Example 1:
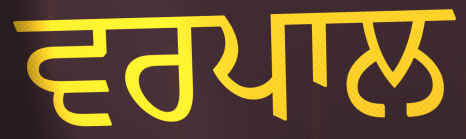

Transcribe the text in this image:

ਵਰਪਾਲ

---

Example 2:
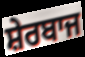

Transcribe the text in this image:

ਸ਼ੇਰਬਾਜ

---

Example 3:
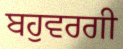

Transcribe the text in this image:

ਬਹੁਵਰਗੀ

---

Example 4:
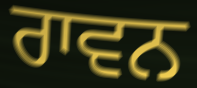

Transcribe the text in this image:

ਰਾਵਨ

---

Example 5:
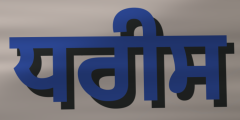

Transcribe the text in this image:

ਧਰੀਸ